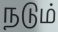
நடும்